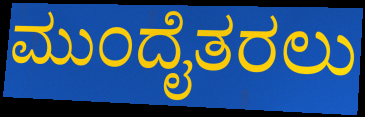
ಮುಂದೈತರಲು